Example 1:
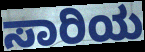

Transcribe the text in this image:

ಸಾರಿಯ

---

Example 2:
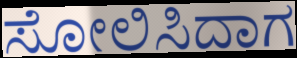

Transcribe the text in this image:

ಸೋಲಿಸಿದಾಗ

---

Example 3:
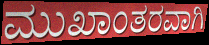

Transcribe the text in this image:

ಮುಖಾಂತರವಾಗಿ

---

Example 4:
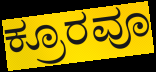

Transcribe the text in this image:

ಕ್ರೂರವೂ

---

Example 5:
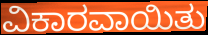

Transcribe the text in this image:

ವಿಕಾರವಾಯಿತು